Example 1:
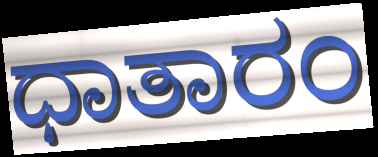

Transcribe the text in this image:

ಧಾತಾರಂ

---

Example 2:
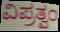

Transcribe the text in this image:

ವಿಪ್ರತ್ವಂ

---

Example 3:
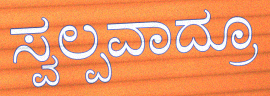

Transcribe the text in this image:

ಸ್ವಲ್ಪವಾದ್ರೂ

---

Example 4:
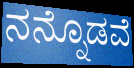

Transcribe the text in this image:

ನನ್ನೊಡವೆ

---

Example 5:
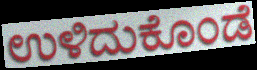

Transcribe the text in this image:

ಉಳಿದುಕೊಂಡೆ